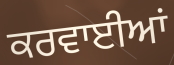
ਕਰਵਾਈਆਂ